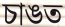
চাঙত